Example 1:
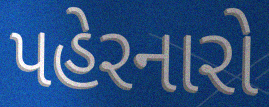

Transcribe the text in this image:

પહેરનારો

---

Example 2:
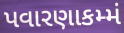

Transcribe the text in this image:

પવારણાકમ્મં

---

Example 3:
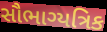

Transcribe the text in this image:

સૌભાગ્યત્રિક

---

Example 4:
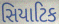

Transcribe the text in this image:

સિયાટિક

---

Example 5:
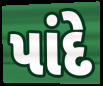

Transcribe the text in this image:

પાંદે